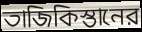
তাজিকিস্তানের